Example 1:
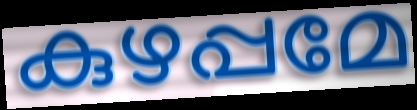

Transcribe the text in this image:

കുഴപ്പമേ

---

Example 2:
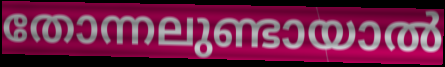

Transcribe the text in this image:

തോന്നലുണ്ടായാൽ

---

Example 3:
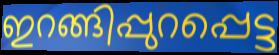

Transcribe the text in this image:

ഇറങ്ങിപ്പുറപ്പെട്ട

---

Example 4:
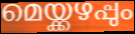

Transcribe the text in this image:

മെയ്ക്കഴപ്പും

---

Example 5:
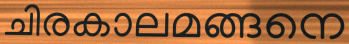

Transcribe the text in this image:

ചിരകാലമങ്ങനെ